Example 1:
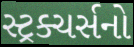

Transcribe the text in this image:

સ્ટ્રક્ચર્સનો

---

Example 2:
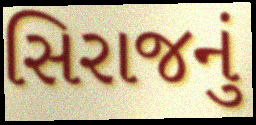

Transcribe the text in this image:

સિરાજનું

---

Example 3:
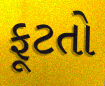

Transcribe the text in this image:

ફૂટતો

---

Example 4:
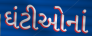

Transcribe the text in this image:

ઘંટીઓનાં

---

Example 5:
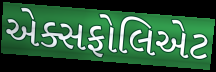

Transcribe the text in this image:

એક્સફોલિએટ